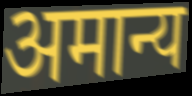
अमान्य